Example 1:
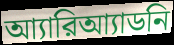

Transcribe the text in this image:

আ্যারিআ্যাডনি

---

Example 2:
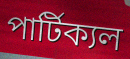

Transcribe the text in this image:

পার্টিক্যল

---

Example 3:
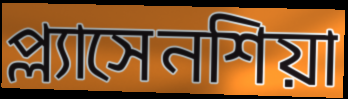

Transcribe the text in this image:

প্ল্যাসেনশিয়া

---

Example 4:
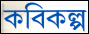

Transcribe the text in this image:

কবিকল্প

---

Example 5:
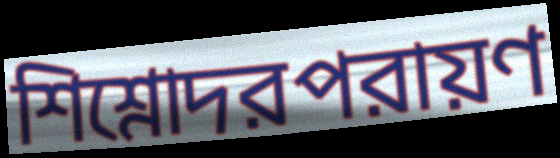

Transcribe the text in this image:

শিশ্নোদরপরায়ণ